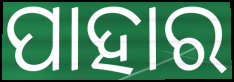
ପାହାର